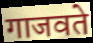
गाजवते